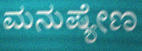
ಮನುಷ್ಯೇಣ